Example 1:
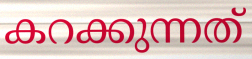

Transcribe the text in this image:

കറക്കുന്നത്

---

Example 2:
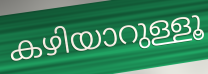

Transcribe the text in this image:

കഴിയാറുള്ളൂ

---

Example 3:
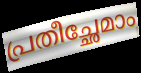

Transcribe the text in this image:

പ്രതീച്ഛേമാം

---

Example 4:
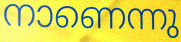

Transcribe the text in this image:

നാണെന്നു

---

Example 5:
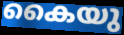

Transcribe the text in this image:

കൈയു